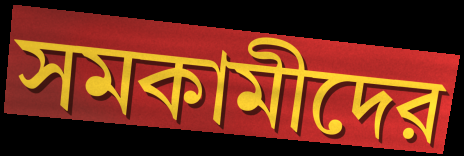
সমকামীদের